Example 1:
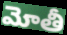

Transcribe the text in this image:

మోతీ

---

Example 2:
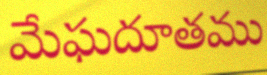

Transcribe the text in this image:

మేఘదూతము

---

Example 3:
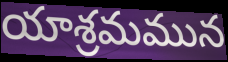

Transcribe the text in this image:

యాశ్రమమున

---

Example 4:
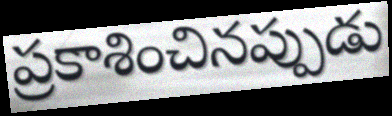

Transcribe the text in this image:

ప్రకాశించినప్పుడు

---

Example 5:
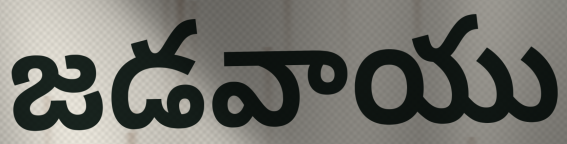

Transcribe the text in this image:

జడవాయు